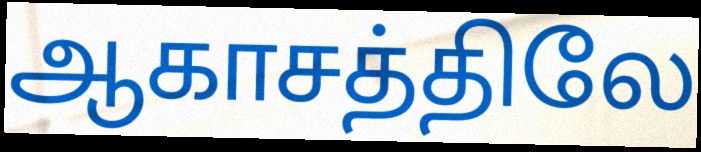
ஆகாசத்திலே